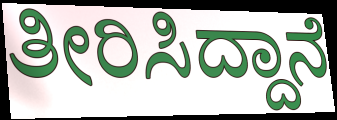
ತೀರಿಸಿದ್ದಾನೆ